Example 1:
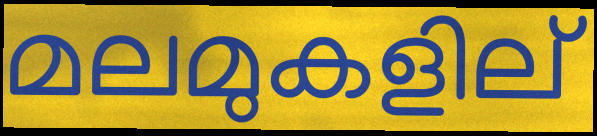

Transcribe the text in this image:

മലമുകളില്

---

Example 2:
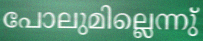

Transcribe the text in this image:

പോലുമില്ലെന്നു്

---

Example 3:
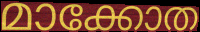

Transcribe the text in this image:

മാക്കോത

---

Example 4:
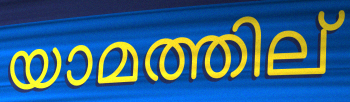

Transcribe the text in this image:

യാമത്തില്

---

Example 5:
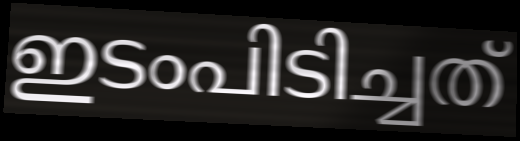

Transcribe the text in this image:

ഇടംപിടിച്ചത്